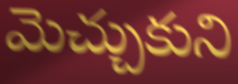
మెచ్చుకుని